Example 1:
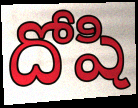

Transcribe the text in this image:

దోషి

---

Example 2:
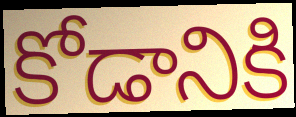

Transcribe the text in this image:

కోడానికి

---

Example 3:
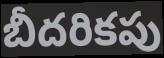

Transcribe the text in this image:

బీదరికపు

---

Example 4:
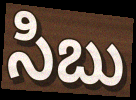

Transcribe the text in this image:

సిబు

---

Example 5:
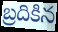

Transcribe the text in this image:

బ్రదికిన